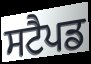
ਸਟੈਪਡ